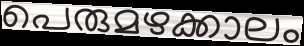
പെരുമഴക്കാലം